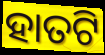
ହାତଟି